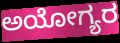
ಅಯೋಗ್ಯರ